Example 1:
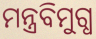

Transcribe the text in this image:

ମନ୍ତ୍ରବିମୁଗ୍ଧ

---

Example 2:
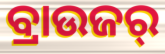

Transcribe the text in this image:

ବ୍ରାଉଜର୍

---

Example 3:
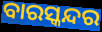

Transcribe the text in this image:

ବାରସ୍କନ୍ଦର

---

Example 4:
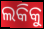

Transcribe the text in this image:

ଲକିକୁ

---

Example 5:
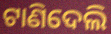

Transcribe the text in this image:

ଟାଣିଦେଲି